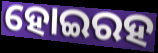
ହୋଇରହ